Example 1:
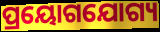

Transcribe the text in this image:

ପ୍ରୟୋଗଯୋଗ୍ୟ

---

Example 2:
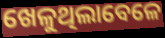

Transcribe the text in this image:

ଖେଳୁଥିଲାବେଳେ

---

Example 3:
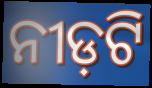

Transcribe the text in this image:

ନୀଡ଼ଟି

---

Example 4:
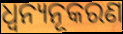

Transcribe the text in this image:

ଧ୍ୱନ୍ୟନୂକରଣ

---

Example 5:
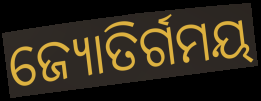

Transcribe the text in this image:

ଜ୍ୟୋତିର୍ଗମୟ